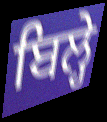
ਬਿਲ੍ਹੇ